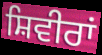
ਸ਼ਿਵੀਰਾਂ